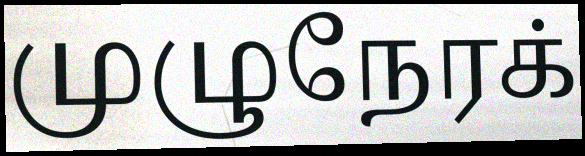
முழுநேரக்